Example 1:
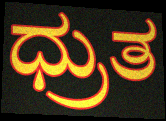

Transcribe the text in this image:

ಧ್ರುತ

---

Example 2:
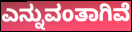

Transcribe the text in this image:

ಎನ್ನುವಂತಾಗಿವೆ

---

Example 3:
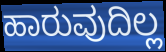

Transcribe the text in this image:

ಹಾರುವುದಿಲ್ಲ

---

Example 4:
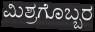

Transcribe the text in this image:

ಮಿಶ್ರಗೊಬ್ಬರ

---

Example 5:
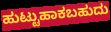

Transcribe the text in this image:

ಹುಟ್ಟುಹಾಕಬಹುದು